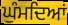
ਘੁੰਮਦਿਆਂ